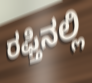
ರಫ್ತಿನಲ್ಲಿ